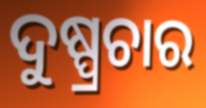
ଦୁଷ୍ପ୍ରଚାର